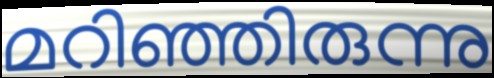
മറിഞ്ഞിരുന്നു